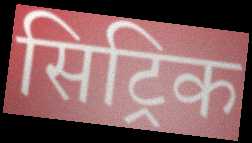
सिट्रिक